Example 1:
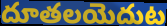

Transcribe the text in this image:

దూతలయెదుట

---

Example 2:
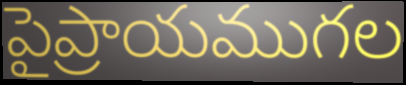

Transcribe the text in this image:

పైప్రాయముగల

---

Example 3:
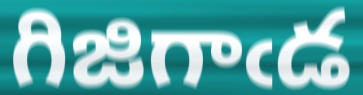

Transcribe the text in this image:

గిజిగాఁడ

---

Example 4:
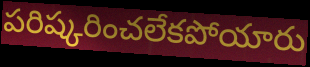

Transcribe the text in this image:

పరిష్కరించలేకపోయారు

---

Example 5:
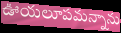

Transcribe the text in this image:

ఊయలూపమన్నాను